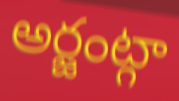
అర్జంట్గా